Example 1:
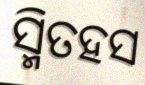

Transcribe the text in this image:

ସ୍ମିତହସ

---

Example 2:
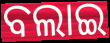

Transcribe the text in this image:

ବଲାଇ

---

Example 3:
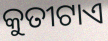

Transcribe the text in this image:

କୁତୀଟାଏ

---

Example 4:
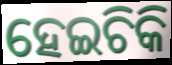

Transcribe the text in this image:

ହେଇଚିକି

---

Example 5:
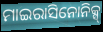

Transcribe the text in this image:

ମାଇରାସିନୋନିକ୍ସ୍